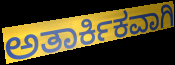
ಅತಾರ್ಕಿಕವಾಗಿ